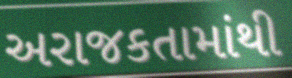
અરાજકતામાંથી